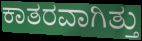
ಕಾತರವಾಗಿತ್ತು